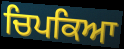
ਚਿਪਕਿਆ